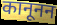
कानूनन